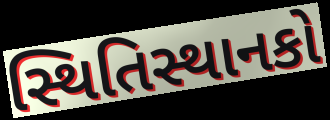
સ્થિતિસ્થાનકો